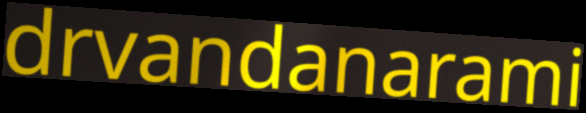
drvandanarami